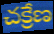
చక్రేణ